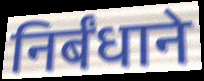
निर्बंधाने